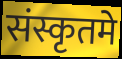
संस्कृतमे